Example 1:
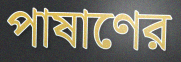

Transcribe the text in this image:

পাষাণের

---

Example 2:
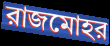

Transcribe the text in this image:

রাজমোহর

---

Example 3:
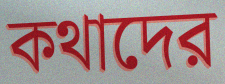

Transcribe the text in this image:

কথাদের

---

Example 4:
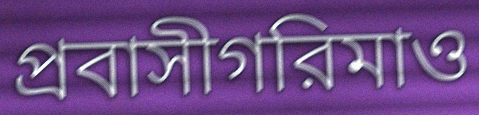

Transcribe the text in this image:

প্রবাসীগরিমাও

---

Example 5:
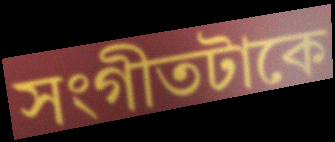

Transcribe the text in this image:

সংগীতটাকে